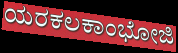
ಯರಕಲಕಾಂಭೋಜಿ